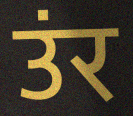
उंर